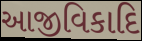
આજીવિકાદિ